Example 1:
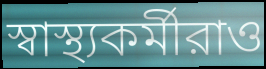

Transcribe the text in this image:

স্বাস্থ্যকর্মীরাও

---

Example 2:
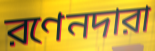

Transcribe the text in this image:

রণেনদারা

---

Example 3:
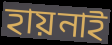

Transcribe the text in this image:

হায়নাই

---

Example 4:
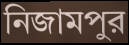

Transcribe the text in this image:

নিজামপুর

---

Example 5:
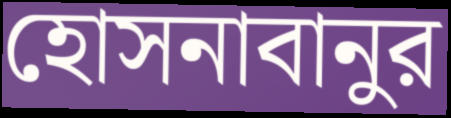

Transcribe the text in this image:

হোসনাবানুর